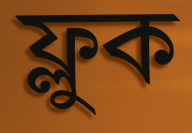
ফ্লুক